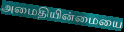
அமைதியின்மையை